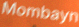
Mombayn